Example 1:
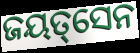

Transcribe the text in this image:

ଜୟତ୍‌ସେନ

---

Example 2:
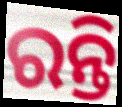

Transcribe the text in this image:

ରନ୍ତି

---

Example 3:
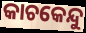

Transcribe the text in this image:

କାଚକେନ୍ଦୁ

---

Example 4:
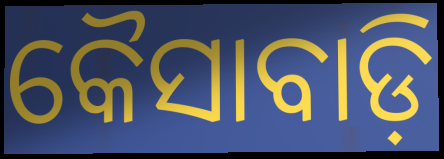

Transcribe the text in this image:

କୈସାବାଡ଼ି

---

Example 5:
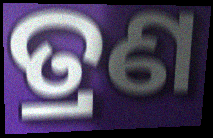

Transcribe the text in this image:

ତ୍ରଣ